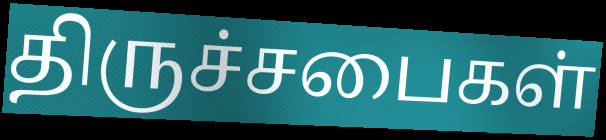
திருச்சபைகள்